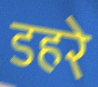
डहरे